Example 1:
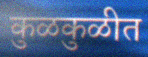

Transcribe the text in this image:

कुळकुळीत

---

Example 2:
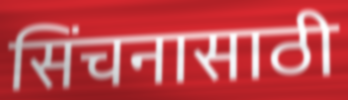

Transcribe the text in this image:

सिंचनासाठी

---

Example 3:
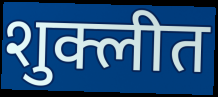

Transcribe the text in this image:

शुक्लीत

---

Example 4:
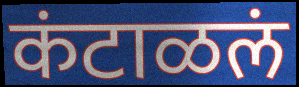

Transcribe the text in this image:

कंटाळलं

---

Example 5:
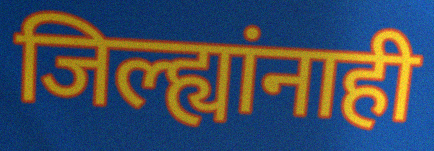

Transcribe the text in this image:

जिल्ह्यांनाही